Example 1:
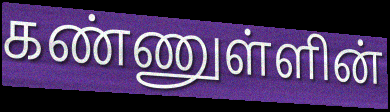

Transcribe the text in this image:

கண்ணுள்ளின்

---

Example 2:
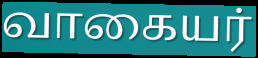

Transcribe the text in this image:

வாகையர்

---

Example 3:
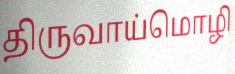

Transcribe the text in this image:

திருவாய்மொழி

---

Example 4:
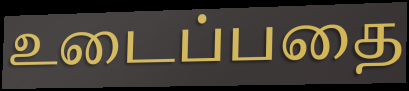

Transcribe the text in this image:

உடைப்பதை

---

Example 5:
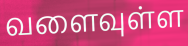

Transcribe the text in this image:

வளைவுள்ள